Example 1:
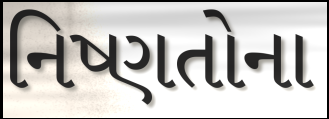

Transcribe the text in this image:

નિષ્ણતોના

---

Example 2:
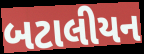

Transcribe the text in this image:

બટાલીયન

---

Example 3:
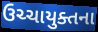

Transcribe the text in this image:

ઉચ્ચાયુક્તના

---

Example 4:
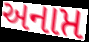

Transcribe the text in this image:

અનાપ્ત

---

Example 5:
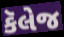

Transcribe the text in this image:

કૅલેજ